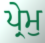
ਪ੍ਰੇਮੁ